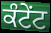
ਕੰਟੇਂਟ